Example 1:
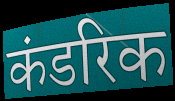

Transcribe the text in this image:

कंडरिक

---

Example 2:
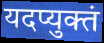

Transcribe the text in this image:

यदप्युक्तं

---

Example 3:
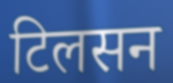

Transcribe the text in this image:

टिलसन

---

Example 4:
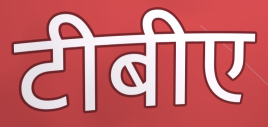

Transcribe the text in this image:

टीबीए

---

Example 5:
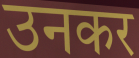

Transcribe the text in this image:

उनकर